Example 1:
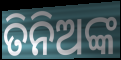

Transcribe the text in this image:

ତିନିଅଙ୍କ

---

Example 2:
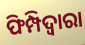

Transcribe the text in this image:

ଫିମ୍ପିଦ୍ଵାରା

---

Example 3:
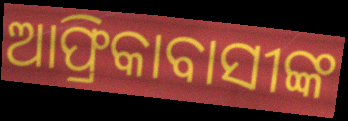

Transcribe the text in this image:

ଆଫ୍ରିକାବାସୀଙ୍କ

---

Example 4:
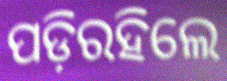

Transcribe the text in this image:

ପଡ଼ିରହିଲେ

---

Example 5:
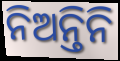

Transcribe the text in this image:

ନିଅନ୍ତିନି